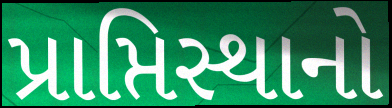
પ્રાપ્તિસ્થાનો